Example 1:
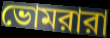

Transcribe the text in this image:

ভোমরারা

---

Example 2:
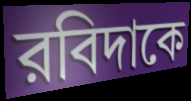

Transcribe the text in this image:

রবিদাকে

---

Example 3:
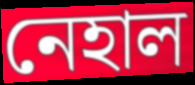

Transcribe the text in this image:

নেহাল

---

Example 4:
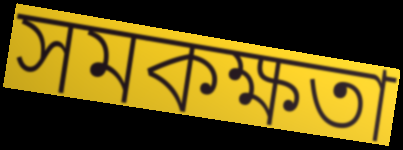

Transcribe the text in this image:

সমকক্ষতা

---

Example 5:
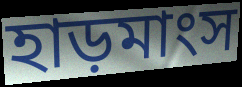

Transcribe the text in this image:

হাড়মাংস